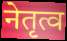
नेतृत्व